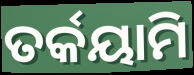
ତର୍କୟାମି